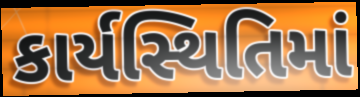
કાર્યસ્થિતિમાં